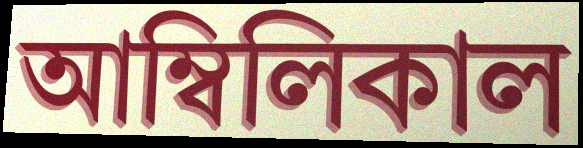
আম্বিলিকাল